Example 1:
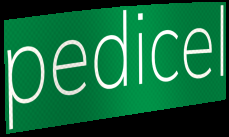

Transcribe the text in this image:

pedicel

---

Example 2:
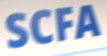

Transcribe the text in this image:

SCFA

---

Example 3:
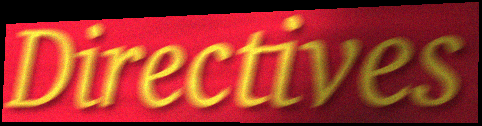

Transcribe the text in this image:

Directives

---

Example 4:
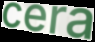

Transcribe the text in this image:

cera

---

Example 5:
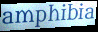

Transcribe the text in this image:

amphibia